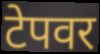
टेपवर